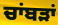
ਚਾਂਬੜਾਂ